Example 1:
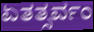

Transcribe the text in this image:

ಏತತ್ಸರ್ವಂ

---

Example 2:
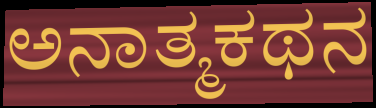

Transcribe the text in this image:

ಅನಾತ್ಮಕಥನ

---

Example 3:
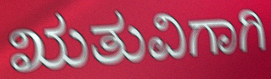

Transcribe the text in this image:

ಋತುವಿಗಾಗಿ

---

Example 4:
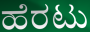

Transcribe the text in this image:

ಹೆರಟು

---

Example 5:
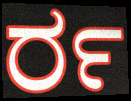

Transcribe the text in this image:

ರ್ರ